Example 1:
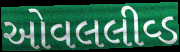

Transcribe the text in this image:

ઓવલલીવ્ડ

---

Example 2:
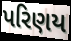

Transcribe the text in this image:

પરિણય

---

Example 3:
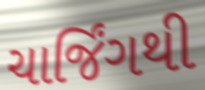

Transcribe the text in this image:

ચાર્જિંગથી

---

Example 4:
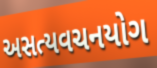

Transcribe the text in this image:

અસત્યવચનયોગ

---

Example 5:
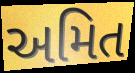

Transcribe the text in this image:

અમિત